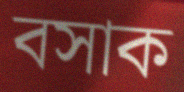
বসাক